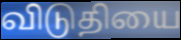
விடுதியை